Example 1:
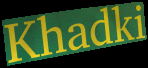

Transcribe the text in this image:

Khadki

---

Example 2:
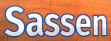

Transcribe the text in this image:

Sassen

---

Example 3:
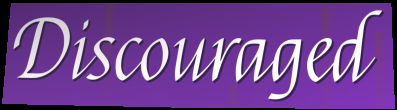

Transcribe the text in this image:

Discouraged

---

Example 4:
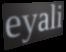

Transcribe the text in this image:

eyali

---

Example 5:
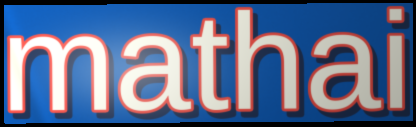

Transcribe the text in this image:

mathai